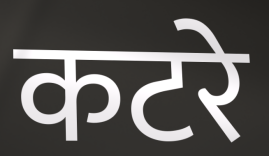
कटरे